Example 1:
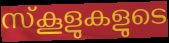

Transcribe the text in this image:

സ്‌കൂളുകളുടെ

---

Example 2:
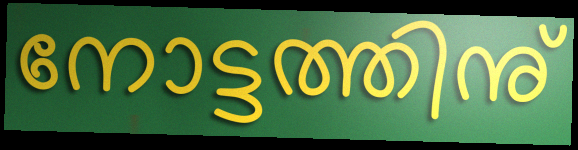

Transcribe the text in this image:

നോട്ടത്തിനു്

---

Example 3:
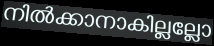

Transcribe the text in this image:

നിൽക്കാനാകില്ലല്ലോ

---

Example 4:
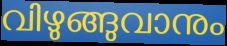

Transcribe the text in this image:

വിഴുങ്ങുവാനും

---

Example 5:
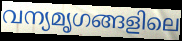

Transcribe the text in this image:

വന്യമൃഗങ്ങളിലെ